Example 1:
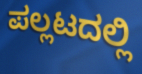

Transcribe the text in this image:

ಪಲ್ಲಟದಲ್ಲಿ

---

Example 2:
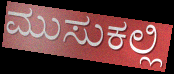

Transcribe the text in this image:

ಮುಸುಕಲ್ಲಿ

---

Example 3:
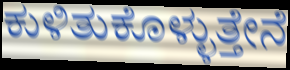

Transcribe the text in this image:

ಕುಳಿತುಕೊಳ್ಳುತ್ತೇನೆ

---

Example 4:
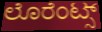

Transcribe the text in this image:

ಲೊರೆಂಟ್ಸ್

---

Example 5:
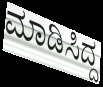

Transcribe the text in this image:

ಮಾಡಿಸಿದ್ದ